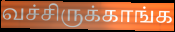
வச்சிருக்காங்க